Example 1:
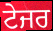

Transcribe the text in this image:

ਟੇਜਰ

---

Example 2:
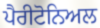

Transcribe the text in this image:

ਪੈਰੀਟੋਨਿਅਲ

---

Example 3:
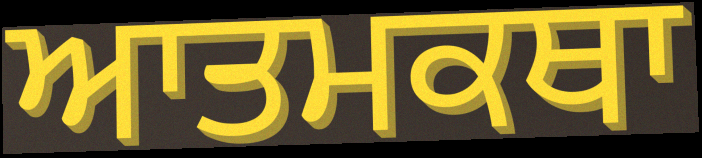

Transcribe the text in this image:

ਆਤਮਕਥਾ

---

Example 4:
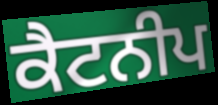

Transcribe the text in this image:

ਕੈਟਨੀਪ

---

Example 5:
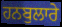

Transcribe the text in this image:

ਹਨਬੁਲਾਰੇ